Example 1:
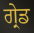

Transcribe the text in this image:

ਗ੍ਰੇਡ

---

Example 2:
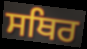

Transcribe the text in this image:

ਸਥਿਰ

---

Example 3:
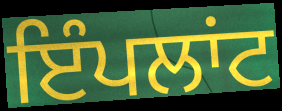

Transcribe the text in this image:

ਇੰਪਲਾਂਟ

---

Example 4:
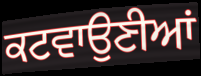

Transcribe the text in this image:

ਕਟਵਾਉਣੀਆਂ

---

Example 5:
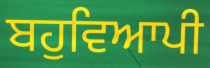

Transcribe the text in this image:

ਬਹੁਵਿਆਪੀ